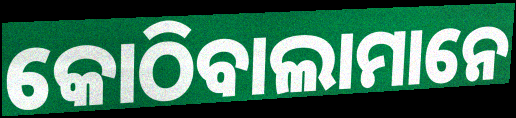
କୋଠିବାଲାମାନେ